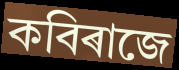
কবিৰাজে